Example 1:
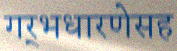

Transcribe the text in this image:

गर्भधारणेसह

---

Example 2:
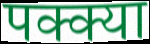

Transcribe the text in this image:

पक्क्या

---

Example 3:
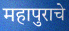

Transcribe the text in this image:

महापुराचे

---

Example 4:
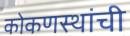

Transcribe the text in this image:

कोकणस्थांची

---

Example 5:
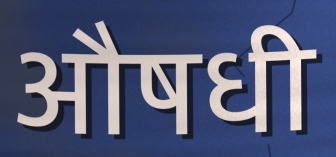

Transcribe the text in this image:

औषधी